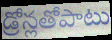
డ్రోన్లతోపాటు